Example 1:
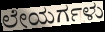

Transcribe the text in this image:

ಲೇಯರ್ಗಳು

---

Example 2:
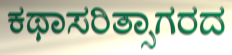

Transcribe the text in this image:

ಕಥಾಸರಿತ್ಸಾಗರದ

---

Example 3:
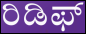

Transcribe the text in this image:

ರಿಡಿಫ್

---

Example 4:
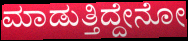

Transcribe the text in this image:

ಮಾಡುತ್ತಿದ್ದೇನೋ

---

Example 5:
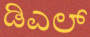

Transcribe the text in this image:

ಡಿಎಲ್